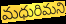
మధురిమని